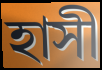
হাসী